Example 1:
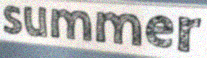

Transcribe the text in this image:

summer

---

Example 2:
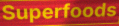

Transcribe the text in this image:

Superfoods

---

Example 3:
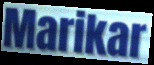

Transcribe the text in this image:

Marikar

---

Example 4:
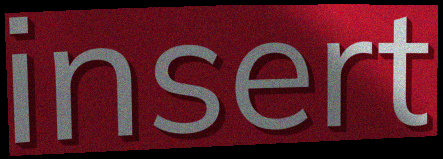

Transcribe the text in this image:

insert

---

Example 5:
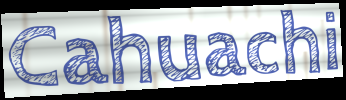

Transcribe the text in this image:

Cahuachi